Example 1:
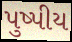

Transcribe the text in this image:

પુષ્પીય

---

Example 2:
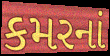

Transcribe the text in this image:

કમરનાં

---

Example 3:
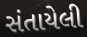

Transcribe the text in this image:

સંતાયેલી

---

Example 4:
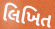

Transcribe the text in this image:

લિખિત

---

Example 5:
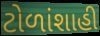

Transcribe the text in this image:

ટોળાંશાહી